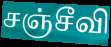
சஞ்சீவி